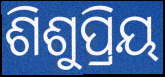
ଶିଶୁପ୍ରିୟ